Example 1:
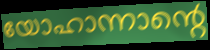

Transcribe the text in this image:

യോഹാന്നാന്റെ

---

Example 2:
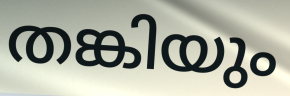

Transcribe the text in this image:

തങ്കിയും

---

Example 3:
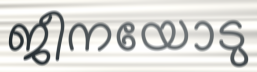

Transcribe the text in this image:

ജീനയോടു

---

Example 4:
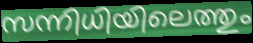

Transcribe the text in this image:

സന്നിധിയിലെത്തും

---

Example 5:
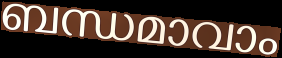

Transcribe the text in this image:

ബന്ധമാവാം